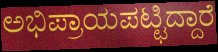
ಅಭಿಪ್ರಾಯಪಟ್ಟಿದ್ದಾರೆ